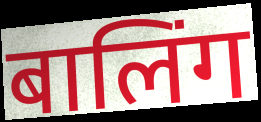
बालिंग